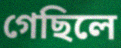
গেছিলে